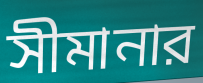
সীমানার